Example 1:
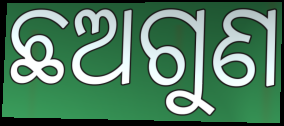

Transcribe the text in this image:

ଛଅଗୁଣ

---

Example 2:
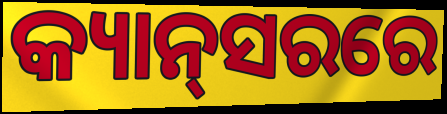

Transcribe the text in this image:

କ୍ୟାନ୍‌ସରରେ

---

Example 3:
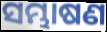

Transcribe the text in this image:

ସମ୍ଭାଷଣ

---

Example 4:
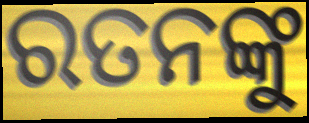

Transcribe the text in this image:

ରତନଙ୍କୁ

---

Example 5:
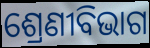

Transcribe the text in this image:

ଶ୍ରେଣୀବିଭାଗ